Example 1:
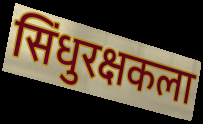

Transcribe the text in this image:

सिंधुरक्षकला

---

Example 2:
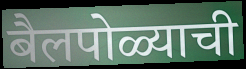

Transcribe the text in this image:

बैलपोळ्याची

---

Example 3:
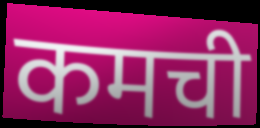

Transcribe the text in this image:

कमची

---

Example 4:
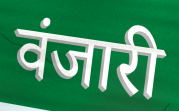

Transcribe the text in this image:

वंजारी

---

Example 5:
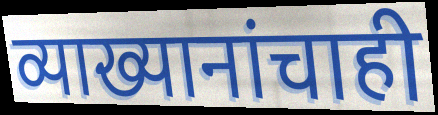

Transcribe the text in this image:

व्याख्यानांचाही